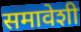
समावेशी